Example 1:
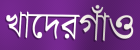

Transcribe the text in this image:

খাদেরগাঁও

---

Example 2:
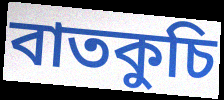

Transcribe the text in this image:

বাতকুচি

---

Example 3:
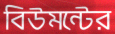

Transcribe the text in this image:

বিউমন্টের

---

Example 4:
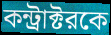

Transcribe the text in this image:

কন্ট্রাক্টরকে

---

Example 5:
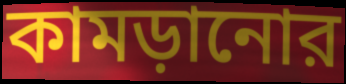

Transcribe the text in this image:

কামড়ানোর